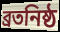
ব্রতনিষ্ঠ